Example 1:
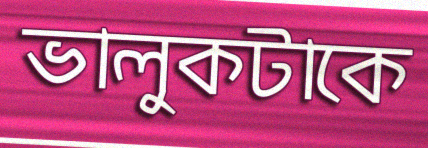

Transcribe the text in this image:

ভালুকটাকে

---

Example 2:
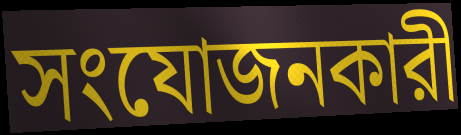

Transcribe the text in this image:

সংযোজনকারী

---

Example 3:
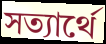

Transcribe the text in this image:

সত্যার্থে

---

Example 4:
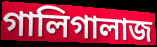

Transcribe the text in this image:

গালিগালাজ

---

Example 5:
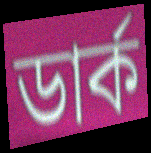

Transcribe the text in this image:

ডার্ক